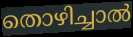
തൊഴിച്ചാൽ